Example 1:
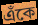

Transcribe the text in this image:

এঁকে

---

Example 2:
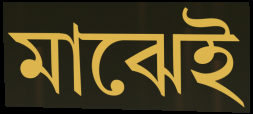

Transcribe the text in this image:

মাঝেই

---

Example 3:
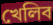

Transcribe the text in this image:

খেলিব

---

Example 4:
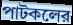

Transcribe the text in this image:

পাটকলের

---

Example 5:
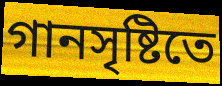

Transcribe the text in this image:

গানসৃষ্টিতে